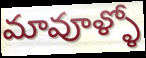
మావూళ్ళో